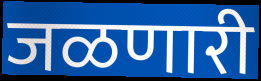
जळणारी